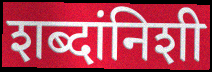
शब्दांनिशी